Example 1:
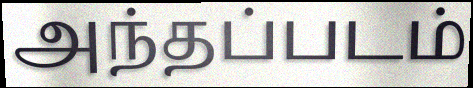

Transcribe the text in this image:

அந்தப்படம்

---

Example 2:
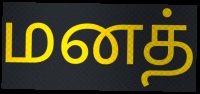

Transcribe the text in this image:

மனத்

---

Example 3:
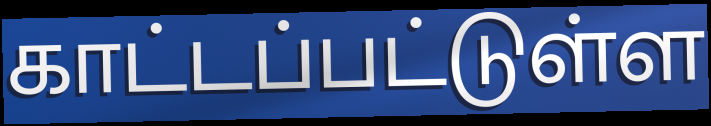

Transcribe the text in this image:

காட்டப்பட்டுள்ள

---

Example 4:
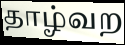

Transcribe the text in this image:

தாழ்வற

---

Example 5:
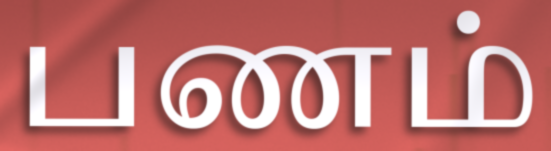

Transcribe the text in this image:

பணம்